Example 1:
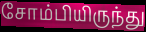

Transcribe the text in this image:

சோம்பியிருந்து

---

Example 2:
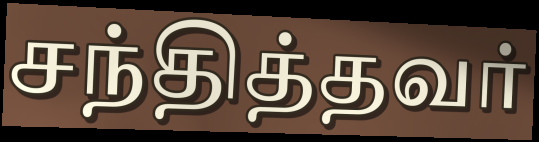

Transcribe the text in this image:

சந்தித்தவர்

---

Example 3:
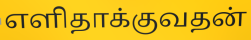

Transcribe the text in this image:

எளிதாக்குவதன்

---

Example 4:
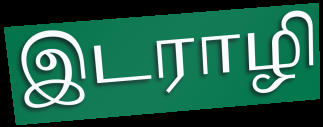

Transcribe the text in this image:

இடராழி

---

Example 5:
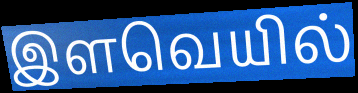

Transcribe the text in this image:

இளவெயில்